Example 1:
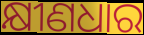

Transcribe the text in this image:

କ୍ଷୀଣଧାର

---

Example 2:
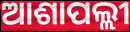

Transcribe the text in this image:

ଆଶାପଲ୍ଲୀ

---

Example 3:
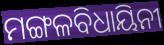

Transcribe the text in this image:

ମଙ୍ଗଳବିଧାୟିନୀ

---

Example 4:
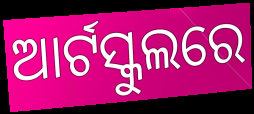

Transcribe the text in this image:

ଆର୍ଟସ୍କୁଲରେ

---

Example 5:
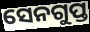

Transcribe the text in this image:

ସେନଗୁପ୍ତ